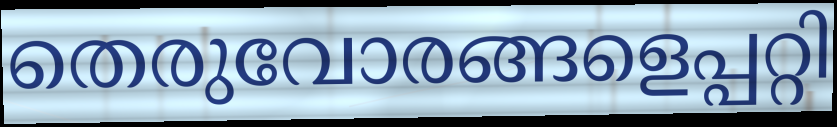
തെരുവോരങ്ങളെപ്പറ്റി